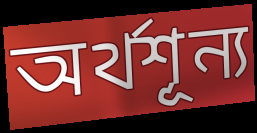
অর্থশূন্য